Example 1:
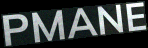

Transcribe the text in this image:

PMANE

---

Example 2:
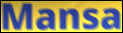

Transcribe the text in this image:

Mansa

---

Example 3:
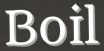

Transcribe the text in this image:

Boil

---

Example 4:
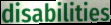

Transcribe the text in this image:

disabilities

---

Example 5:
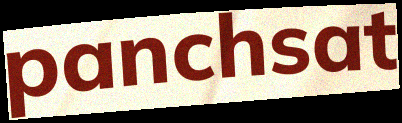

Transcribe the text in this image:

panchsat